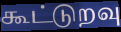
கூட்டுறவு